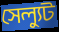
সেল্যুট